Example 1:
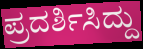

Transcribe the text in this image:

ಪ್ರದರ್ಶಿಸಿದ್ದು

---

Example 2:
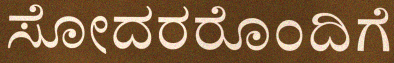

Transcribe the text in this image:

ಸೋದರರೊಂದಿಗೆ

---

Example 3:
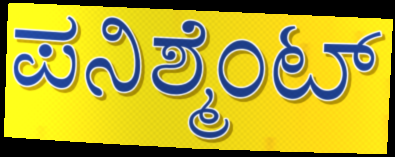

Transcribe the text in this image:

ಪನಿಶ್ಮೆಂಟ್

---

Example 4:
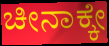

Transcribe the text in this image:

ಚೀನಾಕ್ಕೇ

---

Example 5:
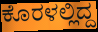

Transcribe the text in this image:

ಕೊರಳಲ್ಲಿದ್ದ